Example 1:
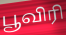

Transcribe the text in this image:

பூவிரி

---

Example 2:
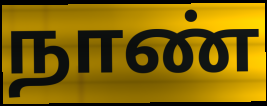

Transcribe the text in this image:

நாண்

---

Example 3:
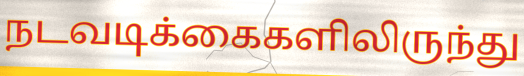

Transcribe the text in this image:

நடவடிக்கைகளிலிருந்து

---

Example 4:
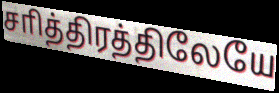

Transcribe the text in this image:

சரித்திரத்திலேயே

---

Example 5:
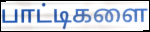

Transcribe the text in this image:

பாட்டிகளை